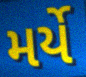
મર્યે